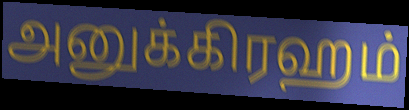
அனுக்கிரஹம்